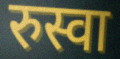
रुस्वा